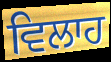
ਵਿਲਾਹ